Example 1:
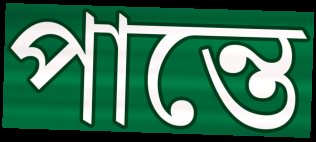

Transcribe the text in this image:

পান্তে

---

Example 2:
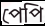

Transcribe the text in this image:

পেপি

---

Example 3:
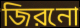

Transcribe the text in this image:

জিরনো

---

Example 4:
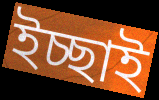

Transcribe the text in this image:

ইচ্ছাই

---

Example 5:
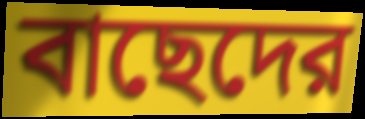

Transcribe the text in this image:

বাছেদের